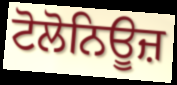
ਟੋਲੋਨਿਊਜ਼